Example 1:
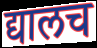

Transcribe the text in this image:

द्यालच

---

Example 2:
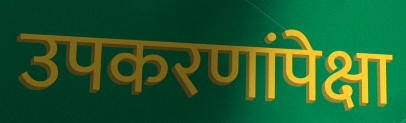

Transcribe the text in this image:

उपकरणांपेक्षा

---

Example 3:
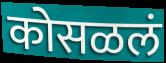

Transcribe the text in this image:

कोसळलं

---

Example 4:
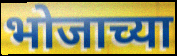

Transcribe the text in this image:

भोजाच्या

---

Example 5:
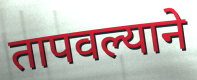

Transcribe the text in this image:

तापवल्याने